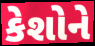
કેશોને